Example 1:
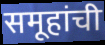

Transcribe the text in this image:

समूहांची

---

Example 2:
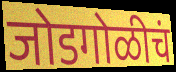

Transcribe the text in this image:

जोडगोळीचं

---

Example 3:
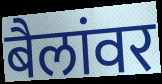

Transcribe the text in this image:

बैलांवर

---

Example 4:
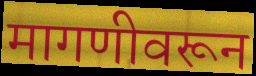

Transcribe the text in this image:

मागणीवरून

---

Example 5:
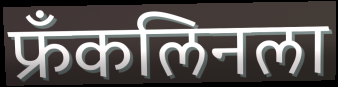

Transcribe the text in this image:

फ्रॅंकलिनला